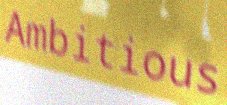
Ambitious